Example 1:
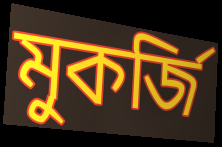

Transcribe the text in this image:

মুকর্জি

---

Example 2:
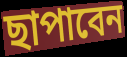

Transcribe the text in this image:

ছাপাবেন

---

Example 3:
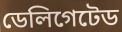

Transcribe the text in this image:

ডেলিগেটেড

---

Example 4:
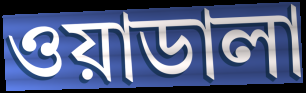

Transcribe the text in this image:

ওয়াডালা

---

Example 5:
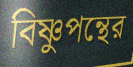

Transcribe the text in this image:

বিষ্ণুপন্থের